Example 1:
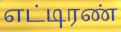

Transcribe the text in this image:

எட்டிரண்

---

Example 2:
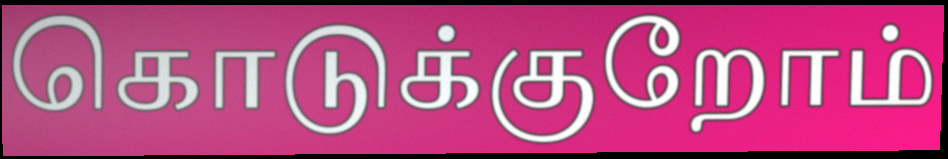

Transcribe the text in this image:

கொடுக்குறோம்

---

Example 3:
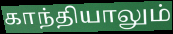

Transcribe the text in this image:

காந்தியாலும்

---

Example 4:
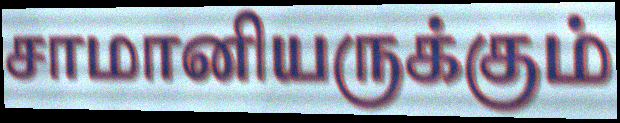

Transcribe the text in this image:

சாமானியருக்கும்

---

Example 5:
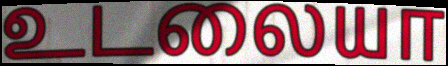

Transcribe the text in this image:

உடலையா